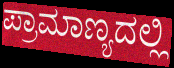
ಪ್ರಾಮಾಣ್ಯದಲ್ಲಿ